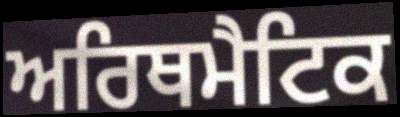
ਅਰਿਥਮੈਟਿਕ